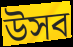
উসব